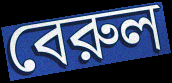
বেরুল